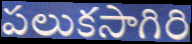
పలుకసాగిరి